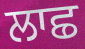
ਲਾਛ